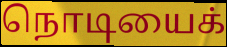
நொடியைக்